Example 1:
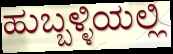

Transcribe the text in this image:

ಹುಬ್ಬಳ್ಳಿಯಲ್ಲಿ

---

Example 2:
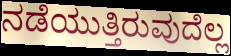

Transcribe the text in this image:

ನಡೆಯುತ್ತಿರುವುದೆಲ್ಲ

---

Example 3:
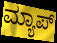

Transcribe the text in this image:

ಮ್ಯಾಪ್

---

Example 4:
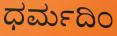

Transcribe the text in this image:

ಧರ್ಮದಿಂ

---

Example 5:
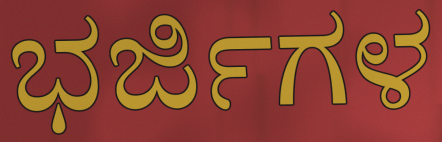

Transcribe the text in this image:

ಭರ್ಜಿಗಳ